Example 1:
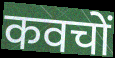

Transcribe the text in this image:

कवचों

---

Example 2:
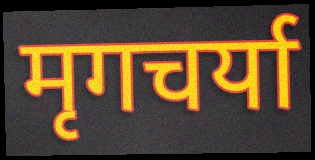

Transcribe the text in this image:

मृगचर्या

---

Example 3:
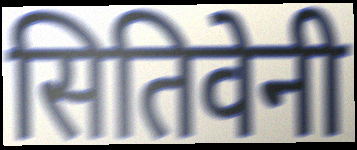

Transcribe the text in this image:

सितिवेनी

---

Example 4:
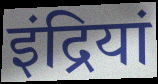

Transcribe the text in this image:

इंद्रियां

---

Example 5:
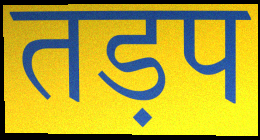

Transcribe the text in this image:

तड़प